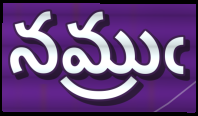
నమ్రుఁ